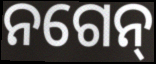
ନଗେନ୍